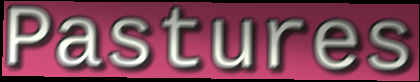
Pastures